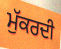
ਮੁੱਕਰਦੀ